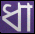
ধা